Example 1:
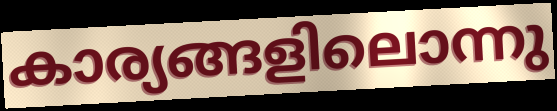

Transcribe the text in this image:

കാര്യങ്ങളിലൊന്നു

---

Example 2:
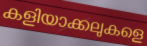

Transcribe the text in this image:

കളിയാക്കലുകളെ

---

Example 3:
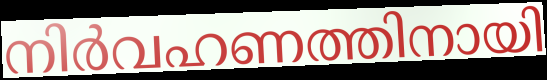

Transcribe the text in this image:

നിർവഹണത്തിനായി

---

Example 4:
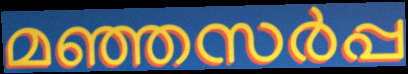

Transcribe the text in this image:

മഞ്ഞസർപ്പ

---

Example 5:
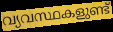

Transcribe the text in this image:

വ്യവസ്ഥകളുണ്ട്